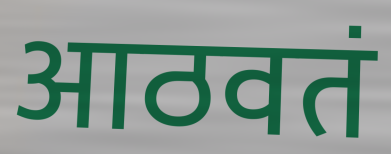
आठवतं